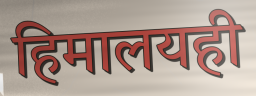
हिमालयही